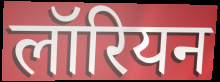
लॉरियन